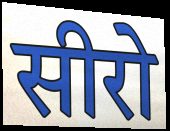
सीरो